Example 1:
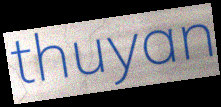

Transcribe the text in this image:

thuyan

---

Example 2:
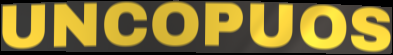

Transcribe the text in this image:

UNCOPUOS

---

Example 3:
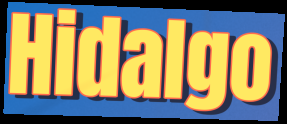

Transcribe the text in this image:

Hidalgo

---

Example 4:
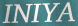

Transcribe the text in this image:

INIYA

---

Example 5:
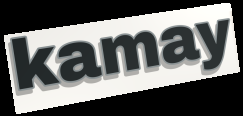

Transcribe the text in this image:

kamay